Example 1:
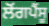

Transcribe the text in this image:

ਲੋਂਗਪੈਂਸੂ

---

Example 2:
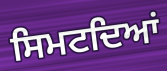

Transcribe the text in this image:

ਸਿਮਟਦਿਆਂ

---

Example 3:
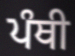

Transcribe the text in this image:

ਪੰਥੀ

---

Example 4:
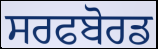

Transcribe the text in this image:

ਸਰਫਬੋਰਡ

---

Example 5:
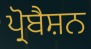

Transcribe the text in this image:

ਪ੍ਰੋਬੈਸ਼ਨ